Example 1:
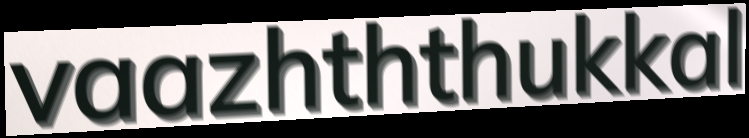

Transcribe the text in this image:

vaazhththukkal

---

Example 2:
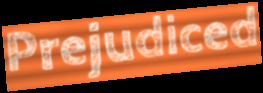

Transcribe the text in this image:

Prejudiced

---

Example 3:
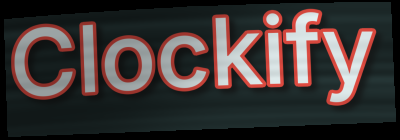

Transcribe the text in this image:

Clockify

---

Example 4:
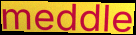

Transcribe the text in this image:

meddle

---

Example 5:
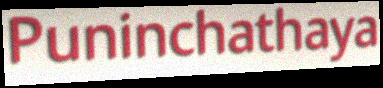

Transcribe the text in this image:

Puninchathaya